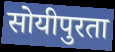
सोयीपुरता